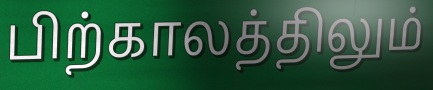
பிற்காலத்திலும்